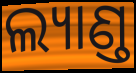
ଲ୍ୟାଣ୍ଡ